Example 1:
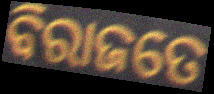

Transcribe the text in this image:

ବିରାଜତେ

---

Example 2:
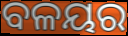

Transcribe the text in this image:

ବଳୟର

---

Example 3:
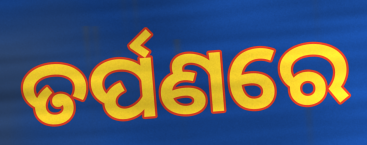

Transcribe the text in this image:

ତର୍ପଣରେ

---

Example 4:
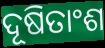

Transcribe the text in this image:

ଦୂଷିତାଂଶ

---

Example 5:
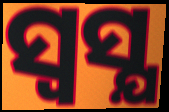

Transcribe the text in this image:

ସ୍ଵସ୍ଯ